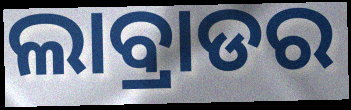
ଲାବ୍ରାଡର